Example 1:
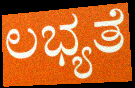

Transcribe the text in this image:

ಲಭ್ಯತೆ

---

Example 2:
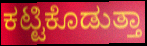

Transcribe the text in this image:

ಕಟ್ಟಿಕೊಡುತ್ತಾ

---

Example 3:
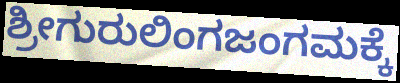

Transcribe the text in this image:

ಶ್ರೀಗುರುಲಿಂಗಜಂಗಮಕ್ಕೆ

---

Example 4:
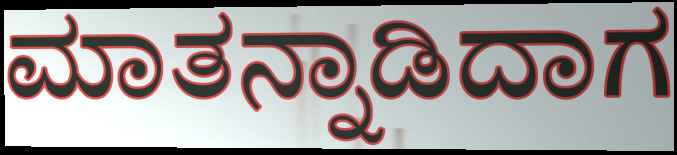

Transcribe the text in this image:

ಮಾತನ್ನಾಡಿದಾಗ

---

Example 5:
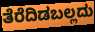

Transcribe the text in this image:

ತೆರೆದಿಡಬಲ್ಲದು